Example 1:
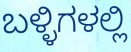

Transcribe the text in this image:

ಬಳ್ಳಿಗಳಲ್ಲಿ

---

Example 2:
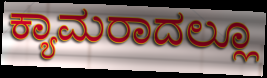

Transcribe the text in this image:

ಕ್ಯಾಮರಾದಲ್ಲೂ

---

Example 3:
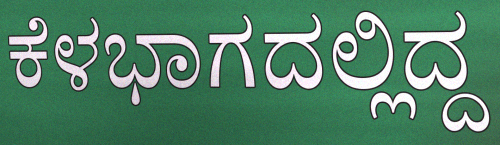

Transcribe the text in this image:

ಕೆಳಭಾಗದಲ್ಲಿದ್ದ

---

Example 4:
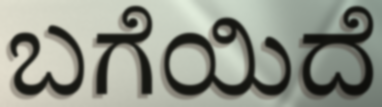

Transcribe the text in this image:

ಬಗೆಯಿದೆ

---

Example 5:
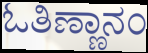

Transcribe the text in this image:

ಓತಿಣ್ಣಾನಂ